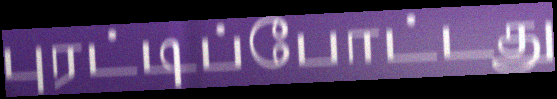
புரட்டிப்போட்டது